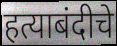
हत्याबंदीचे